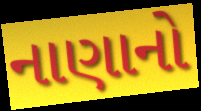
નાણાનો